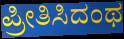
ಪ್ರೀತಿಸಿದಂಥ